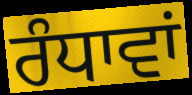
ਰੰਧਾਵਾਂ